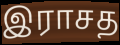
இராசத